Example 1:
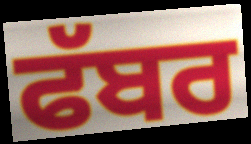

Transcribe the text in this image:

ਫੱਬਰ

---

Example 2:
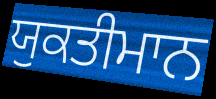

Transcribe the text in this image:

ਯੁਕਤੀਮਾਨ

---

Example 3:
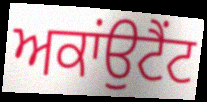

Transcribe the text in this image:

ਅਕਾਂਉਟੈਂਟ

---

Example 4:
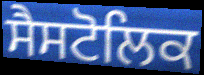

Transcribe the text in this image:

ਸੈਸਟੋਲਿਕ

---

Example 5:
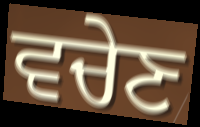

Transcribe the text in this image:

ਵਚੇਣ